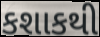
કશાકથી